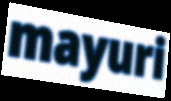
mayuri